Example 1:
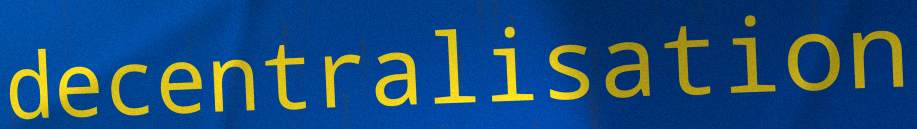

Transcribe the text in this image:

decentralisation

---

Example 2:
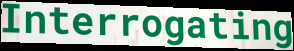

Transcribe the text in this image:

Interrogating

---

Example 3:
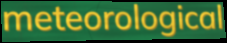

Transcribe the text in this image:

meteorological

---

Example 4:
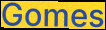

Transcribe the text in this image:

Gomes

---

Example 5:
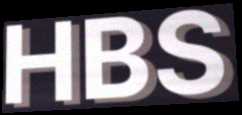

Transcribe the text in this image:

HBS